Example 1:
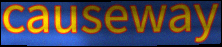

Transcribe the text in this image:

causeway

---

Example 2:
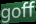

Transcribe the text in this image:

goff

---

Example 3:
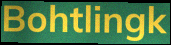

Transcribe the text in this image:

Bohtlingk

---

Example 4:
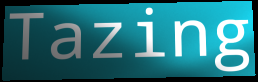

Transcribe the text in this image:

Tazing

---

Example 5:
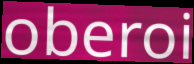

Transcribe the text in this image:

oberoi